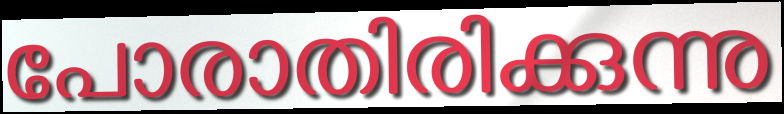
പോരാതിരിക്കുന്നു